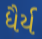
ધૈર્ય